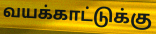
வயக்காட்டுக்கு